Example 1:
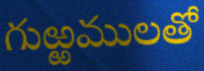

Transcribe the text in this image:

గుఱ్ఱములతో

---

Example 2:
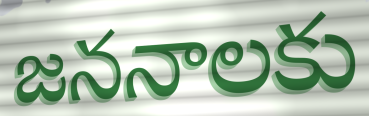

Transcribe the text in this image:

జననాలకు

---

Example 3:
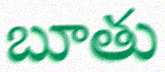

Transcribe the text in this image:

బూతు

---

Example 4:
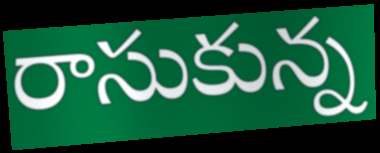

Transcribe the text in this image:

రాసుకున్న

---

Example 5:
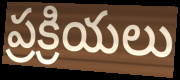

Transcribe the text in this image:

ప్రక్రియలు